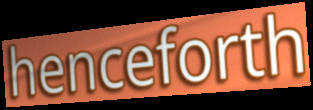
henceforth